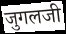
जुगलजी